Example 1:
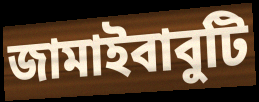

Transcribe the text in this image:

জামাইবাবুটি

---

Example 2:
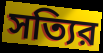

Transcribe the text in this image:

সত্যির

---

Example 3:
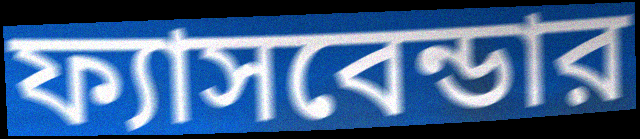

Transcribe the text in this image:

ফ্যাসবেন্ডার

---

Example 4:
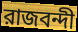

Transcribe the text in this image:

রাজবন্দী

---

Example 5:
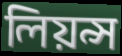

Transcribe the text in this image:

লিয়ন্স